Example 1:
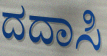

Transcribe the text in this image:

ದದಾಸಿ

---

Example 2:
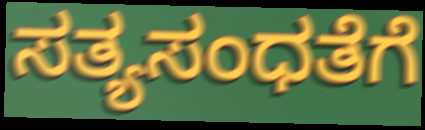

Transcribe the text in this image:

ಸತ್ಯಸಂಧತೆಗೆ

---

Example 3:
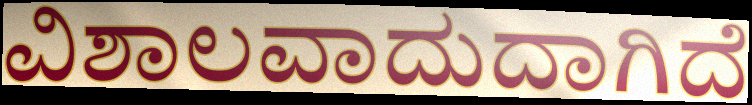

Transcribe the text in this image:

ವಿಶಾಲವಾದುದಾಗಿದೆ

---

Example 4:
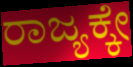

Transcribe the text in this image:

ರಾಜ್ಯಕ್ಕೇ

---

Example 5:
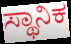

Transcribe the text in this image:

ಸ್ಥಾನಿಕ